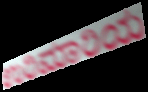
ಉರಿಮಾರಿಯ